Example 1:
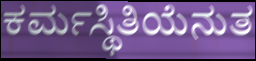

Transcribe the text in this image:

ಕರ್ಮಸ್ಥಿತಿಯೆನುತ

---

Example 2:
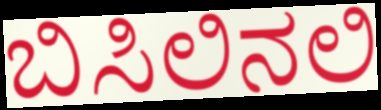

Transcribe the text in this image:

ಬಿಸಿಲಿನಲಿ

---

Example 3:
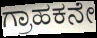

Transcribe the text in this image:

ಗ್ರಾಹಕನೇ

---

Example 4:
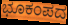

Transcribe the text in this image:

ಭೂಕಂಪದ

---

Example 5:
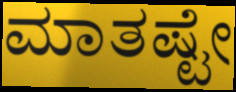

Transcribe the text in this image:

ಮಾತಷ್ಟೇ